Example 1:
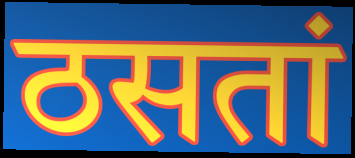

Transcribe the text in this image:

ठसतां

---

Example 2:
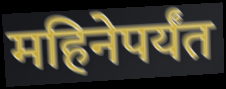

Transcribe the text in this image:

महिनेपर्यंत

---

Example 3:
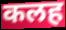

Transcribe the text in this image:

कलह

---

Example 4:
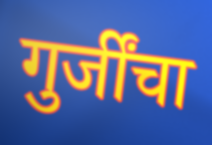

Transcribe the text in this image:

गुर्जींचा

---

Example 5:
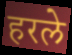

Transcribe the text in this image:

हरले